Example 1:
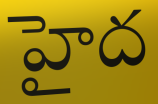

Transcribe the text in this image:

హైద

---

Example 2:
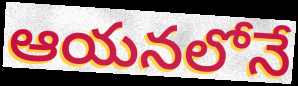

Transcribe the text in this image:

ఆయనలోనే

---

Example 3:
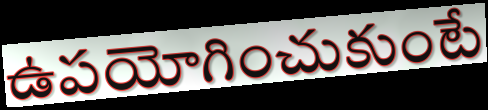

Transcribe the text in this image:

ఉపయోగించుకుంటే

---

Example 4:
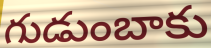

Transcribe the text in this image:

గుడుంబాకు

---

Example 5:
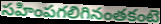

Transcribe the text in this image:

సహింపగలిగినంతకంటె